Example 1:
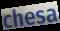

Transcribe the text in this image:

chesa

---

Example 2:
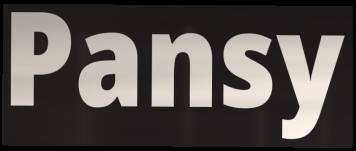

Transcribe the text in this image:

Pansy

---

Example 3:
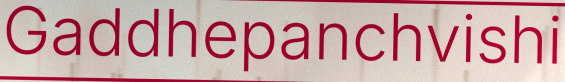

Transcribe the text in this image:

Gaddhepanchvishi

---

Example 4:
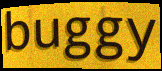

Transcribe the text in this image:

buggy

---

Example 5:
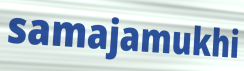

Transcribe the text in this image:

samajamukhi